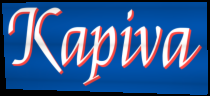
Kapiva